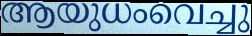
ആയുധംവെച്ചു